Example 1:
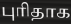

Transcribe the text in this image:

புரிதாக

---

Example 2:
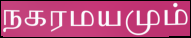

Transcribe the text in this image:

நகரமயமும்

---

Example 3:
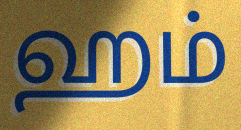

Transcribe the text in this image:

ஹம்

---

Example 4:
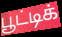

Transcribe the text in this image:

பூட்டிக்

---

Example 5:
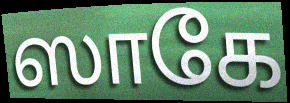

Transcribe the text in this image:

ஸாகே